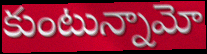
కుంటున్నామో